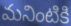
మనింటికి